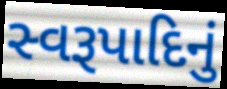
સ્વરૂપાદિનું